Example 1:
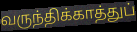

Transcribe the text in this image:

வருந்திக்காத்துப்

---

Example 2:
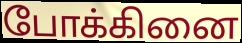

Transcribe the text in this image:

போக்கினை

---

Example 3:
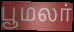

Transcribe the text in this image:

பூமலர்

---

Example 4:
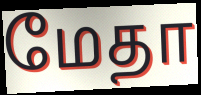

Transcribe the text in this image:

மேதா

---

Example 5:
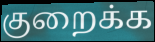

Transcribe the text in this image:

குறைக்க